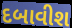
દબાવીશ